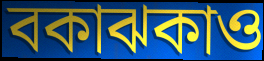
বকাঝকাও